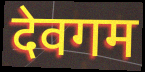
देवगम